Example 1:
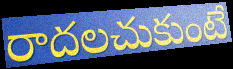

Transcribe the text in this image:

రాదలచుకుంటే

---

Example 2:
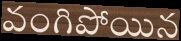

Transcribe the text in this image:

వంగిపోయిన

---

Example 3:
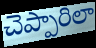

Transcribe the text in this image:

చెప్పారిలా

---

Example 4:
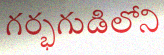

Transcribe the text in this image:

గర్భగుడిలోని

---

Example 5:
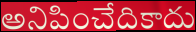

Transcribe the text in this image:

అనిపించేదికాదు